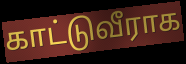
காட்டுவீராக